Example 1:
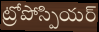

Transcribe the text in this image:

ట్రోపోస్పియర్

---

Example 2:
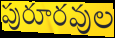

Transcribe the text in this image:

పురూరవుల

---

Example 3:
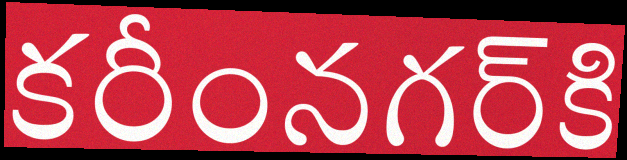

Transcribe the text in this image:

కరీంనగర్‌కి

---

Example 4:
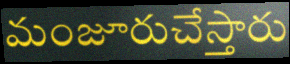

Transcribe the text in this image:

మంజూరుచేస్తారు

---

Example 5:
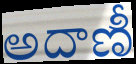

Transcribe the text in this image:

అదాణీ